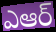
ఎఆర్